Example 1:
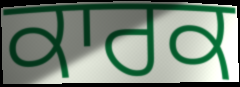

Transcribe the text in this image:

ਕਾਰਕ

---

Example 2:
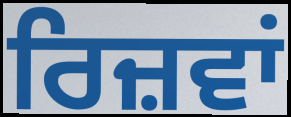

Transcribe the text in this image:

ਰਿਜ਼ਵਾਂ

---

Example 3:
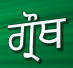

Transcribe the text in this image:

ਗ੍ਰੌਥ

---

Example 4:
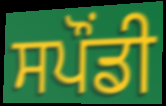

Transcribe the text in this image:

ਸਪੌਂਡੀ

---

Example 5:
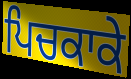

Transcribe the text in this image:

ਪਿਚਕਾਕੇ